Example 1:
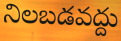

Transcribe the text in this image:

నిలబడవద్దు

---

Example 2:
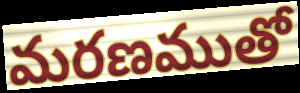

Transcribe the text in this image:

మరణముతో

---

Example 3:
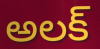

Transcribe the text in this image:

అలక్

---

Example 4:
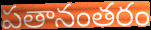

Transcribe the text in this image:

పతానంతరం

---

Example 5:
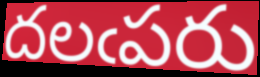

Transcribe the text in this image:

దలఁపరు